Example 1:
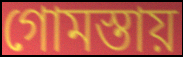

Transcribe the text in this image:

গোমস্তায়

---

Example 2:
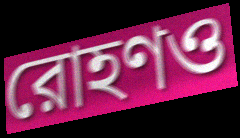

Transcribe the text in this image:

রোহণও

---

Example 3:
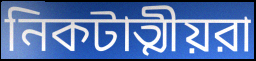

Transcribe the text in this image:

নিকটাত্মীয়রা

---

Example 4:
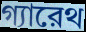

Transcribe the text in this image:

গ্যারেথ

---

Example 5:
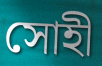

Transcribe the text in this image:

সোহী